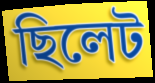
ছিলেট